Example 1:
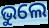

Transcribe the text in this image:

ଭୁଲେ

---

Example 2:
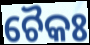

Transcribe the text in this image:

ଚୈକଃ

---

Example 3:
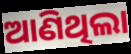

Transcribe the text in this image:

ଆଣିଥିଲା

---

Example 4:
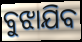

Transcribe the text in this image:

ବୁଝାଯିବ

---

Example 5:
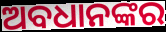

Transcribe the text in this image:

ଅବଧାନଙ୍କର